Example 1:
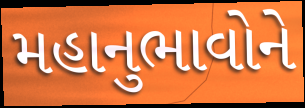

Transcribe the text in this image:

મહાનુભાવોને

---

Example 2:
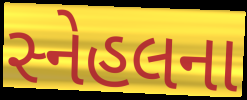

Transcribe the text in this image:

સ્નેહલના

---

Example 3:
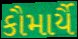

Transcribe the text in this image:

કૌમાર્યૈ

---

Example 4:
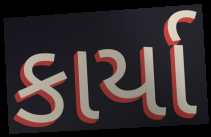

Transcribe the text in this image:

કાર્યા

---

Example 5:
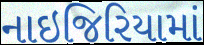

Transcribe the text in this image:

નાઇજિરિયામાં